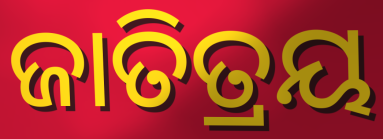
ଜାତିତ୍ରୟ